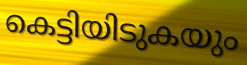
കെട്ടിയിടുകയും